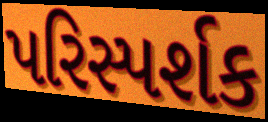
પરિસ્પર્શક